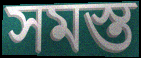
সমস্ত